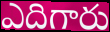
ఎదిగారు